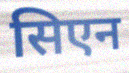
सिएन